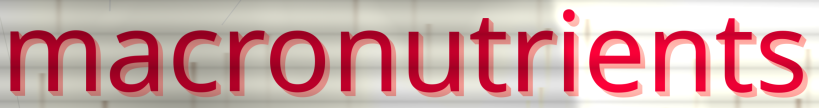
macronutrients